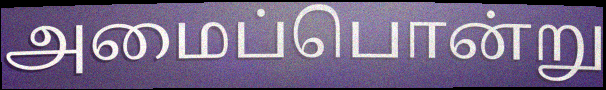
அமைப்பொன்று